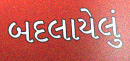
બદલાયેલું